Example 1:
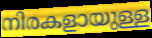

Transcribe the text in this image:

നിരകളായുള്ള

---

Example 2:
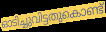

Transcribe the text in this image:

ഓടിച്ചുവിട്ടതുകൊണ്ട്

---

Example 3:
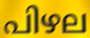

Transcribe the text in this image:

പിഴല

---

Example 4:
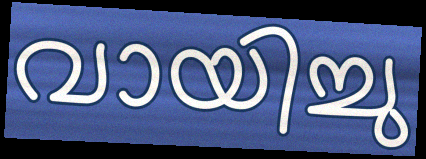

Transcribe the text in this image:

വായിച്ചു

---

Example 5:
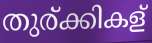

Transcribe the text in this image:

തുര്ക്കികള്